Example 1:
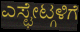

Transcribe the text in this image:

ಎಸ್ಟೇಟ್ಗಳಿಗೆ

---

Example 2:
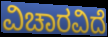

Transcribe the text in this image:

ವಿಚಾರವಿದೆ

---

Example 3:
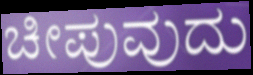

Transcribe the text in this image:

ಚೀಪುವುದು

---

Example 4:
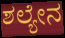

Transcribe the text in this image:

ಶಲ್ಯೇನ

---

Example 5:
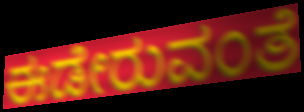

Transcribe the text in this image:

ಈಡೇರುವಂತೆ